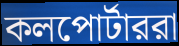
কলপোর্টাররা